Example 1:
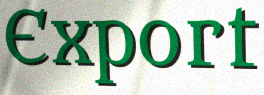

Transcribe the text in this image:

Export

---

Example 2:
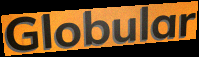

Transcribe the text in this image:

Globular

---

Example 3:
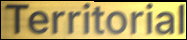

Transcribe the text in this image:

Territorial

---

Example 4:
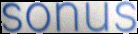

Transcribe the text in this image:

sonus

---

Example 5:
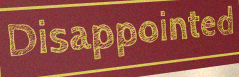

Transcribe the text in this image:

Disappointed